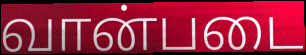
வான்படை